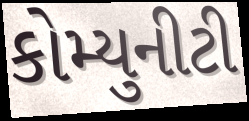
કોમ્યુનીટી